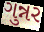
ગુન્નર